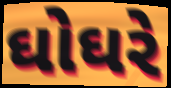
ઘોઘરે